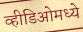
व्हीडिओमध्ये